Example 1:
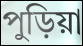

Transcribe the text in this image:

পুড়িয়া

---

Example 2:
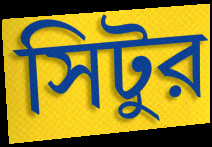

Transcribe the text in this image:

সিটুর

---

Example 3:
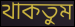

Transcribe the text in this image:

থাকতুম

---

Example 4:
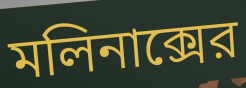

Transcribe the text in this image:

মলিনাক্সের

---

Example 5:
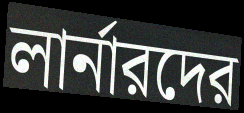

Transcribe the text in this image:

লার্নারদের